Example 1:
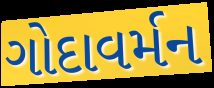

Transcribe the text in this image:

ગોદાવર્મન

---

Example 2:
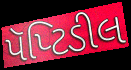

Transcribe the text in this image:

પૅપ્ટિડીલ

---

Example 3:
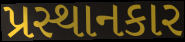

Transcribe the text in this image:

પ્રસ્થાનકાર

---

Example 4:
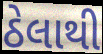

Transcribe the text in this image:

ઠેલાથી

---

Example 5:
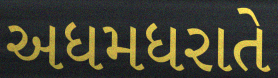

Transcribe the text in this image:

અધમધરાતે